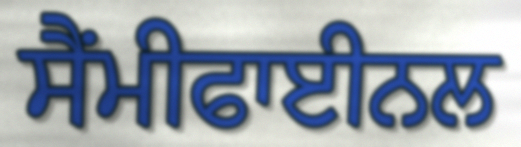
ਸੈਂਮੀਫਾਈਨਲ